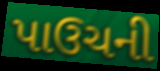
પાઉચની